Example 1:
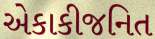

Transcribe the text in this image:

એકાકીજનિત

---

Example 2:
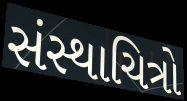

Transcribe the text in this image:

સંસ્થાચિત્રો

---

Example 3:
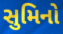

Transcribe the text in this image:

સુમિનો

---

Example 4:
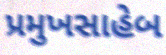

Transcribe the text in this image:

પ્રમુખસાહેબ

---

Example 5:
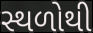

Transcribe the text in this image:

સ્થળોથી